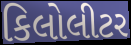
કિલોલીટર